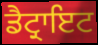
ਡੈਟ੍ਰਾਇਟ